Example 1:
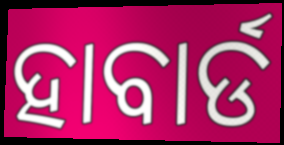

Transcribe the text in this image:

ହାବାର୍ଡ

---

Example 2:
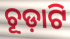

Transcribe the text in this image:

ଚୂଡ଼ାଟି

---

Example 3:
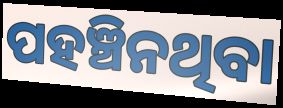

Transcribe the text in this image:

ପହଞ୍ଚିନଥିବା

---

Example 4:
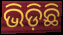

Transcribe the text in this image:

ଭିଡ଼ିଛି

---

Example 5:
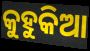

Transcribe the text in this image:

କୁହୁକିଆ